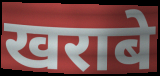
खराबे